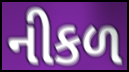
નીકળ